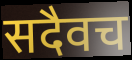
सदैवच